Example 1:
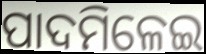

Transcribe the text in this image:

ପାଦମିଳେଇ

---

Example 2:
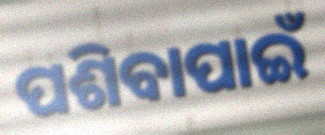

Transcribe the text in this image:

ପଶିବାପାଇଁ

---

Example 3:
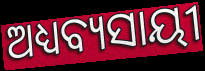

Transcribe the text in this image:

ଅଧ୍ୟବ୍ୟସାୟୀ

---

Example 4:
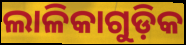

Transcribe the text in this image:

ଲାଳିକାଗୁଡ଼ିକ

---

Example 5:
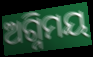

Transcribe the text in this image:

ଅଗ୍ନିମୟ